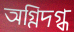
অগ্নিদগ্ধ